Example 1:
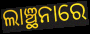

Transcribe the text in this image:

ଲାଞ୍ଛନାରେ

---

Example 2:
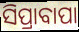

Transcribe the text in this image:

ସିପ୍ରାବାପା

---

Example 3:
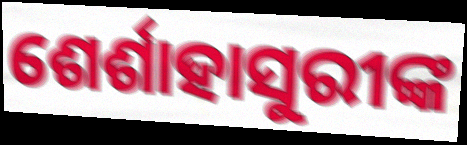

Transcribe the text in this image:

ଶେର୍ଶାହାସୁରୀଙ୍କ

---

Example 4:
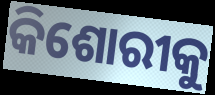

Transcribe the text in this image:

କିଶୋରୀକୁ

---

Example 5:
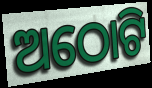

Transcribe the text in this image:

ଅଠୋଟି